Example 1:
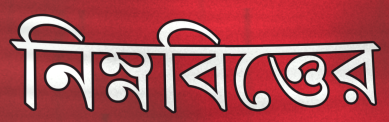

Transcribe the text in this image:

নিম্নবিত্তের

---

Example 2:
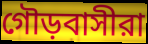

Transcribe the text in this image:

গৌড়বাসীরা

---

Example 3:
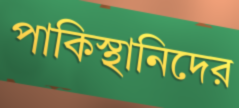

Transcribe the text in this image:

পাকিস্থানিদের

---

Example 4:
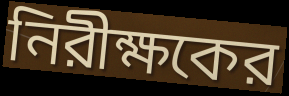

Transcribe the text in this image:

নিরীক্ষকের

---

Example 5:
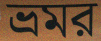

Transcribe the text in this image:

ভ্রমর